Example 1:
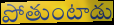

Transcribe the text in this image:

పోతుంటాడు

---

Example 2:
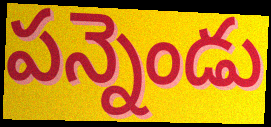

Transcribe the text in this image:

పన్నెండు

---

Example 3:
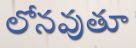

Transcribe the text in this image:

లోనవుతూ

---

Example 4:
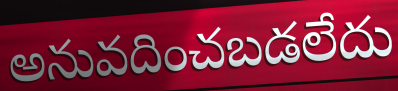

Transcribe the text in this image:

అనువదించబడలేదు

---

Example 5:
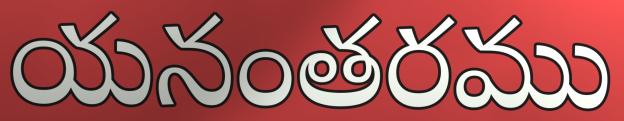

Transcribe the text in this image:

యనంతరము